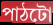
পাঠটো